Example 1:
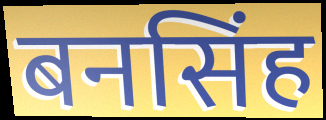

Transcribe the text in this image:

बनसिंह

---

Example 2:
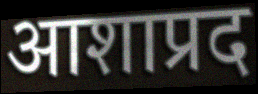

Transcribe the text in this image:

आशाप्रद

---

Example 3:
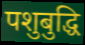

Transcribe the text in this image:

पशुबुद्धि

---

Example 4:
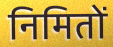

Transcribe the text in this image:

निमितों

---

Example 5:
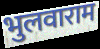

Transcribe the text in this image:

भुलवाराम